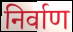
निर्वाण